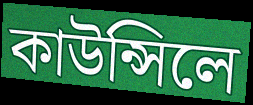
কাউন্সিলে